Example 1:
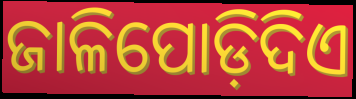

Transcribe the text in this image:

ଜାଳିପୋଡ଼ିଦିଏ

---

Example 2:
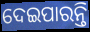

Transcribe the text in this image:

ଦେଇପାରନ୍ତି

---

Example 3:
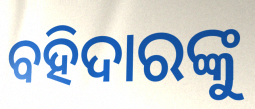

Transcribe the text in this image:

ବହିଦାରଙ୍କୁ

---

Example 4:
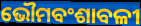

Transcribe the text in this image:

ଭୌମବଂଶାବଳୀ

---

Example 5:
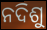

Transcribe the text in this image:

ନଦିଶୁ